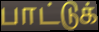
பாட்டுக்